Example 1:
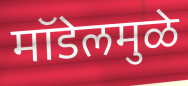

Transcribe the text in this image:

मॉडेलमुळे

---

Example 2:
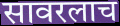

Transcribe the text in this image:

सावरलाच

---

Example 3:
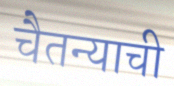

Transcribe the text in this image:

चैतन्याची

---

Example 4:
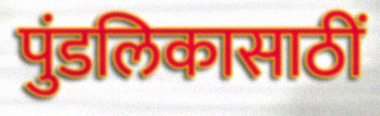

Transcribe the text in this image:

पुंडलिकासाठीं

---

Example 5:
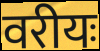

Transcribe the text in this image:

वरीयः